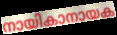
നായികാനായക